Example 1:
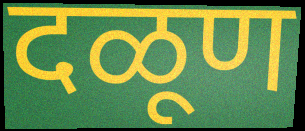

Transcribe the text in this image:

दळूण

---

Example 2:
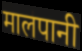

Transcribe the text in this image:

मालपानी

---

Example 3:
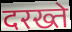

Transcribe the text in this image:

दरख्ते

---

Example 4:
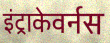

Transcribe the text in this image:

इंट्राकेवर्नस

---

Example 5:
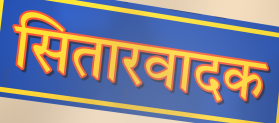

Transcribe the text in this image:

सितारवादक